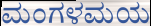
ಮಂಗಳಮಯ